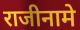
राजीनामे